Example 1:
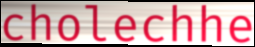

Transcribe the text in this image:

cholechhe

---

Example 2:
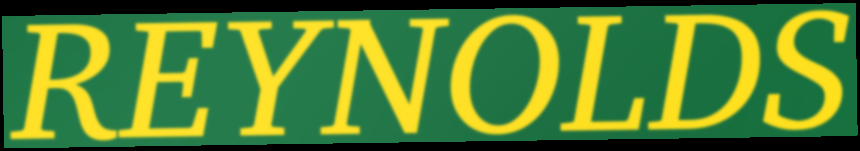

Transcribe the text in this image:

REYNOLDS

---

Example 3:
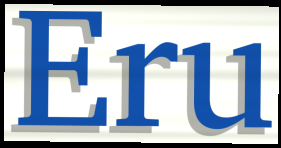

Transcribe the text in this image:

Eru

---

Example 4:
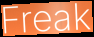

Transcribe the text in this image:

Freak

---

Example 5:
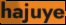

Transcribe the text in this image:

hajuye